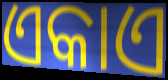
ଏକାଏ